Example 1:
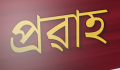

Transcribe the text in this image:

প্ৰৱাহ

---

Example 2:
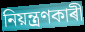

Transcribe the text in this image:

নিয়ন্ত্ৰণকাৰী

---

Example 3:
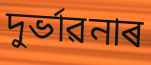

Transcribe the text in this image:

দুৰ্ভাৱনাৰ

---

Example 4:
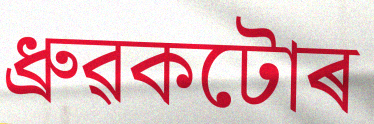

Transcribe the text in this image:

ধ্ৰুৱকটোৰ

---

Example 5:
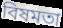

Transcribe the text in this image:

বিষমতা